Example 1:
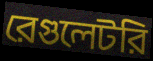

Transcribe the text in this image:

রেগুলেটরি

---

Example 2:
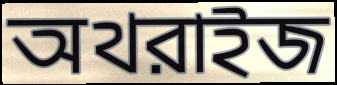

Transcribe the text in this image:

অথরাইজ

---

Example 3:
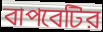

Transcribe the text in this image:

বাপবেটির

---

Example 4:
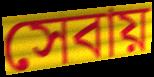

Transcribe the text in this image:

সেবায়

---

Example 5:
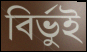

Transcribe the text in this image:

বির্ভুই